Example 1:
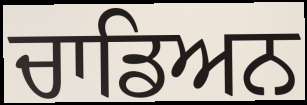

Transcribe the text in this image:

ਚਾਡਿਅਨ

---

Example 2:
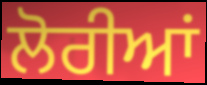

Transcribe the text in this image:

ਲੋਰੀਆਂ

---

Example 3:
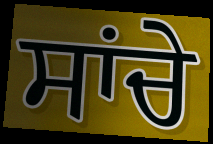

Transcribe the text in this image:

ਸਾਂਚੇ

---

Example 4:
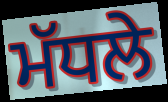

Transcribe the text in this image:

ਮੱਧਲੇ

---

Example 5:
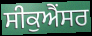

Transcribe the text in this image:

ਸੀਕੁਐਂਸਰ